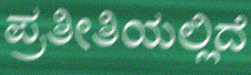
ಪ್ರತೀತಿಯಲ್ಲಿದೆ